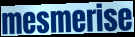
mesmerise